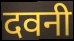
दवनी